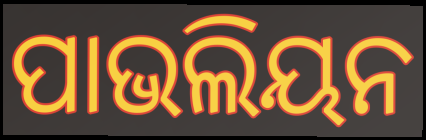
ପାଭଲିୟନ